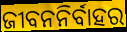
ଜୀବନନିର୍ବାହର